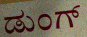
ಡುಂಗ್